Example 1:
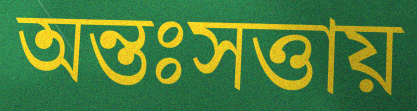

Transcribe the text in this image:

অন্তঃসত্তায়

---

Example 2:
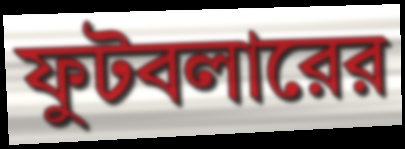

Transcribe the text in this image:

ফুটবলারের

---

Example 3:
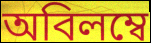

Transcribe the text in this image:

অবিলম্বে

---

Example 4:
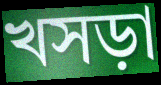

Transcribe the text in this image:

খসড়া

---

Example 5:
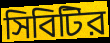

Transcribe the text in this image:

সিবিটির